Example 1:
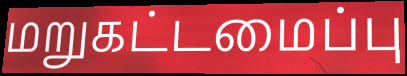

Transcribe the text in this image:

மறுகட்டமைப்பு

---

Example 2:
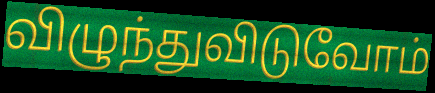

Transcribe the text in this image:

விழுந்துவிடுவோம்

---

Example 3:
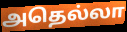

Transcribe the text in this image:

அதெல்லா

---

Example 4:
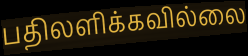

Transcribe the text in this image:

பதிலளிக்கவில்லை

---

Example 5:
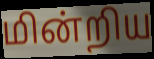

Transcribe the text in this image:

மின்றிய